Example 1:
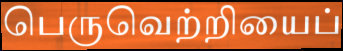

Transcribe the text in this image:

பெருவெற்றியைப்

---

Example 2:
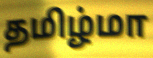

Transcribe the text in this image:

தமிழ்மா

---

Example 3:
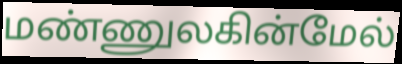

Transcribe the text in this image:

மண்ணுலகின்மேல்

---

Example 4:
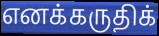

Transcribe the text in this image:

எனக்கருதிக்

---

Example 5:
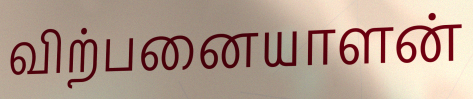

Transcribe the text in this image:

விற்பனையாளன்